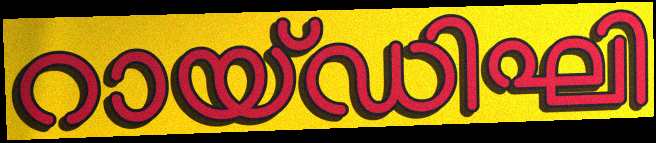
റായ്ഡിഘി